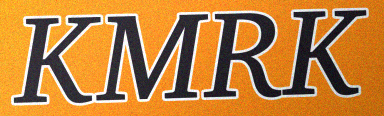
KMRK